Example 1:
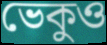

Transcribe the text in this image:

ভেকুও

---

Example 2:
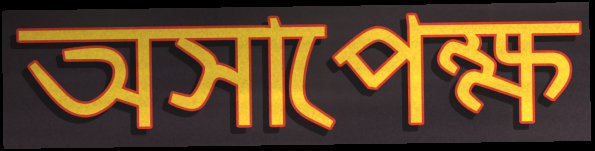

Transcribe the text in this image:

অসাপেক্ষ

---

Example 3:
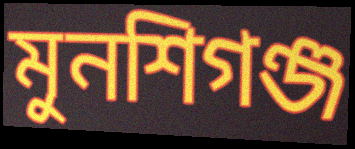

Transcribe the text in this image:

মুনশিগঞ্জ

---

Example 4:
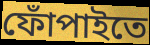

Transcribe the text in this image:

ফোঁপাইতে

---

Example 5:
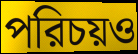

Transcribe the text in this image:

পরিচয়ও